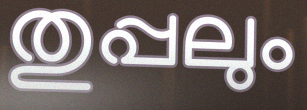
തുപ്പലും